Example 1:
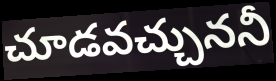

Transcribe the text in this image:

చూడవచ్చుననీ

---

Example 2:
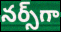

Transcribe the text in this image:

నర్స్‌గా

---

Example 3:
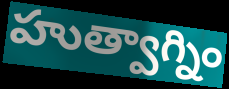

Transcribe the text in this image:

హుత్వాగ్నిం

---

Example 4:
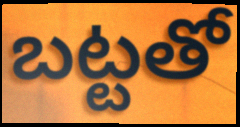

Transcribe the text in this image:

బట్టతో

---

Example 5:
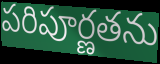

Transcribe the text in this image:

పరిపూర్ణతను